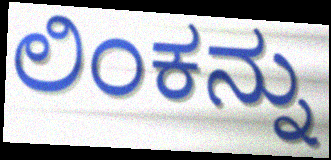
ಲಿಂಕನ್ನು